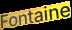
Fontaine